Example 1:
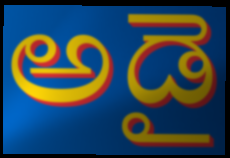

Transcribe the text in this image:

అడై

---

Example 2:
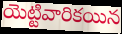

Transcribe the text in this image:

యెట్టివారికయిన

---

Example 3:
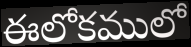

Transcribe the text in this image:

ఈలోకములో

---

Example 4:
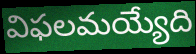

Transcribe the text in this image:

విఫలమయ్యేది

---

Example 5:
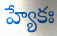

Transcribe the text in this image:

హ్యేకః